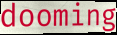
dooming